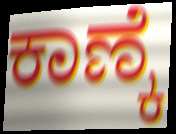
ಕಾಣ್ಕೆ